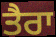
ਤੈਰਾ